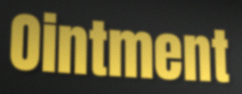
Ointment